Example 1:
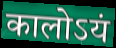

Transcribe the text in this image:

कालोऽयं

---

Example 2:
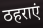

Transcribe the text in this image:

ठहराएं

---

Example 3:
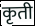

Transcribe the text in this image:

कृती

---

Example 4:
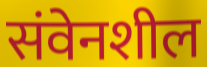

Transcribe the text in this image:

संवेनशील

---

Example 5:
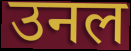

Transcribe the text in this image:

उनल